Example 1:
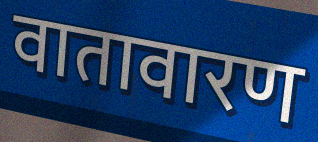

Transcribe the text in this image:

वातावारण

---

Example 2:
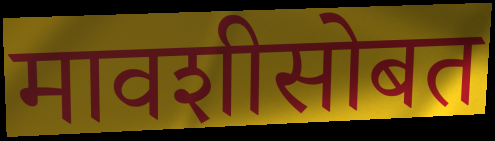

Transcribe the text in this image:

मावशीसोबत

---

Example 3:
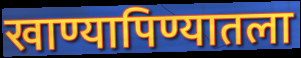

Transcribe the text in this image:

खाण्यापिण्यातला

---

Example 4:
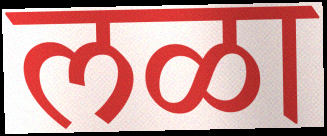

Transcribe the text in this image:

लळा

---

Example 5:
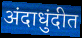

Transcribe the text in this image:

अंदाधुंदीत